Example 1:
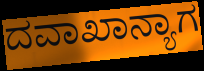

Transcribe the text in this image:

ದವಾಖಾನ್ಯಾಗ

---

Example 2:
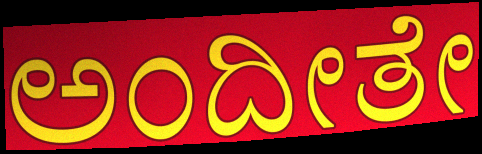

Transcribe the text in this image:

ಅಂದೀತೇ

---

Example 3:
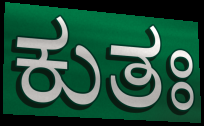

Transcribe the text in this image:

ಕುತಃ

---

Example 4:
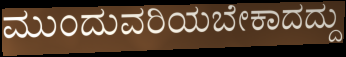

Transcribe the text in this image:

ಮುಂದುವರಿಯಬೇಕಾದದ್ದು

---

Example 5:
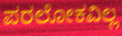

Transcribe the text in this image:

ಪರಲೋಕವಿಲ್ಲ